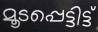
മൂടപ്പെട്ടിട്ട്